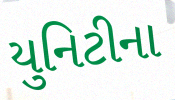
યુનિટીના